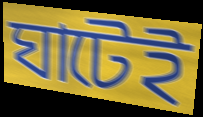
ঘাটেই